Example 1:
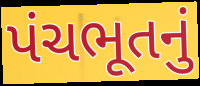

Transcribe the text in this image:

પંચભૂતનું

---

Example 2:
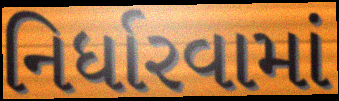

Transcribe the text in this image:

નિર્ધારવામાં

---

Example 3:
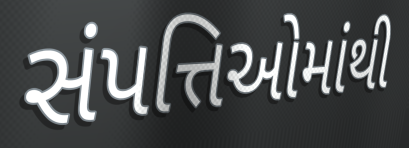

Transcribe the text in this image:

સંપત્તિઓમાંથી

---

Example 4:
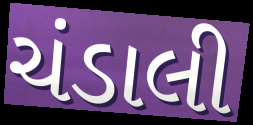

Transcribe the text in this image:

ચંડાલી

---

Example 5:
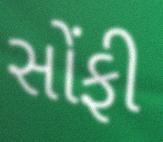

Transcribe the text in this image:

સોંફી